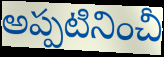
అప్పటినించీ